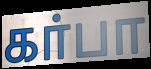
கர்பா